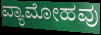
ವ್ಯಾಮೋಹವು